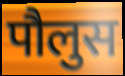
पौलुस